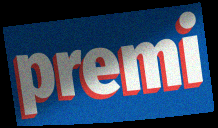
premi